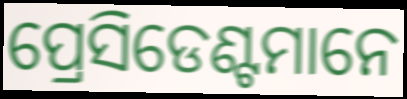
ପ୍ରେସିଡେଣ୍ଟମାନେ